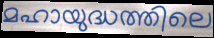
മഹായുദ്ധത്തിലെ